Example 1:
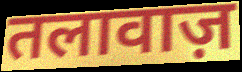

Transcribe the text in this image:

तलावाज़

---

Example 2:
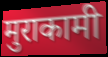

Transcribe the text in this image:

मुराकामी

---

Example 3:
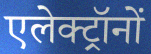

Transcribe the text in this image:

एलेक्ट्रॉनों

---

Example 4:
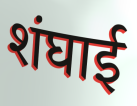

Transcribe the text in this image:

शंघाई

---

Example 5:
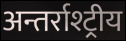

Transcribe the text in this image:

अन्तर्राश्ट्रीय